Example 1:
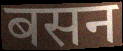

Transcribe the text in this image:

बसन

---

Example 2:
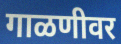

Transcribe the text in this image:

गाळणीवर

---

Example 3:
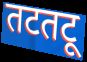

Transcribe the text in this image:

तटतटू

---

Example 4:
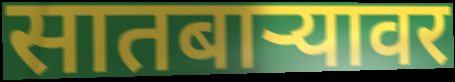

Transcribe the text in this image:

सातबाऱ्यावर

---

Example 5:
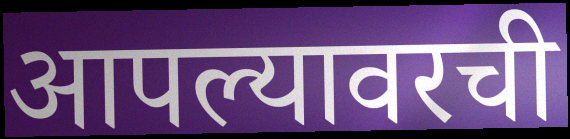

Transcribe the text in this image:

आपल्यावरची